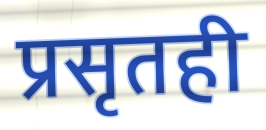
प्रसृतही